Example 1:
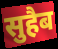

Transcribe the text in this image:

सुहैब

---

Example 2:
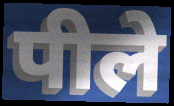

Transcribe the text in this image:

पीले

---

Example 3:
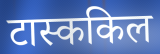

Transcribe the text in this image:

टास्ककिल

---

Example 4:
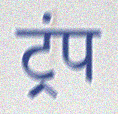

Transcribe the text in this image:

ट्रंप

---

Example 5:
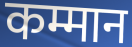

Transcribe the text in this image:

कम्मान